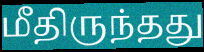
மீதிருந்தது